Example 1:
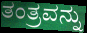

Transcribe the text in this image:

ತಂತ್ರವನ್ನು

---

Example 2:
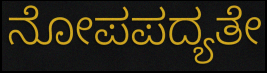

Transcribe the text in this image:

ನೋಪಪದ್ಯತೇ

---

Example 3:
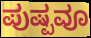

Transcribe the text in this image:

ಪುಷ್ಪವೂ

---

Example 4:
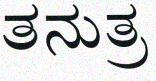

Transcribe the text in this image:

ತನುತ್ರ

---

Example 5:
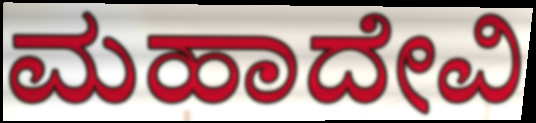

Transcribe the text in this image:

ಮಹಾದೇವಿ